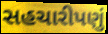
સહચારીપણું